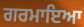
ਗਰਮਾਇਆ